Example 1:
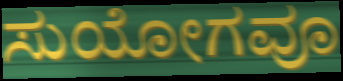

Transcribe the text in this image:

ಸುಯೋಗವೂ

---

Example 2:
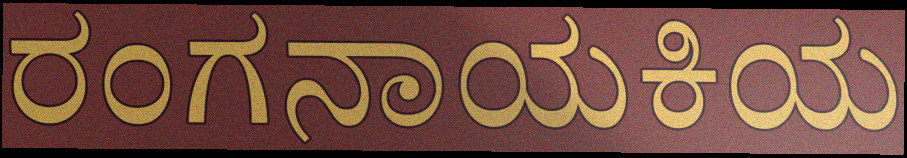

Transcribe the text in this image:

ರಂಗನಾಯಕಿಯ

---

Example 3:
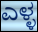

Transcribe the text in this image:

ಎಳ್ಳ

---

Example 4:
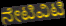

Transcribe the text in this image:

ನೇಟಿವಿಟಿ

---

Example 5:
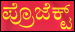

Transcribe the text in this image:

ಪ್ರೊಜೆಕ್ಟ್